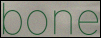
bone